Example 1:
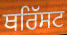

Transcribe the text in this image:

ਥਰਿੱਸਟ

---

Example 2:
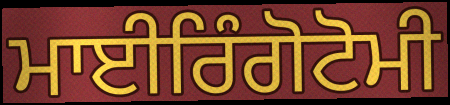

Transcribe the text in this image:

ਮਾਈਰਿੰਗੋਟੋਮੀ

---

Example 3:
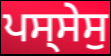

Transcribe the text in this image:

ਪਸ੍ਸੇਸੁ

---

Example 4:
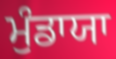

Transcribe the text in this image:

ਮੁੰਡਾਯਾ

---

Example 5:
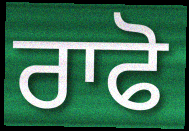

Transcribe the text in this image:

ਰਾਫੋ